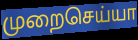
முறைசெய்யா